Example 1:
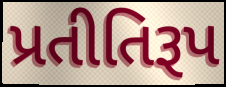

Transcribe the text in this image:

પ્રતીતિરૂપ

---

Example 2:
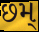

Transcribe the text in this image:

છમ્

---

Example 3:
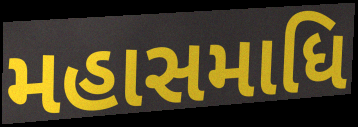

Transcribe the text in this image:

મહાસમાધિ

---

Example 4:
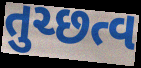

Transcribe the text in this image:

તુચ્છત્વ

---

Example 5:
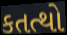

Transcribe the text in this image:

કતત્થો